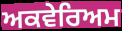
ਅਕਵੇਰਿਅਮ